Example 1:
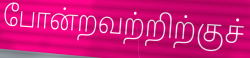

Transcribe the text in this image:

போன்றவற்றிற்குச்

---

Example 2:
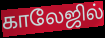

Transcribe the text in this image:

காலேஜில்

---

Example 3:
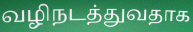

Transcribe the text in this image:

வழிநடத்துவதாக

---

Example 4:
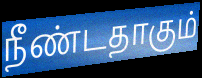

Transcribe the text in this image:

நீண்டதாகும்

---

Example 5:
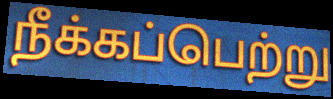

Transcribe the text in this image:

நீக்கப்பெற்று